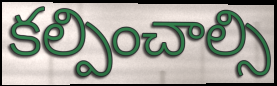
కల్పించాల్సి